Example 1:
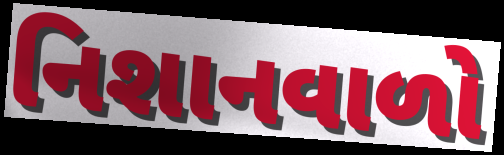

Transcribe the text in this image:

નિશાનવાળો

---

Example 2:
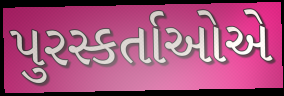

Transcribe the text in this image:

પુરસ્કર્તાઓએ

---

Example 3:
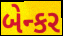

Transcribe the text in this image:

બેન્કર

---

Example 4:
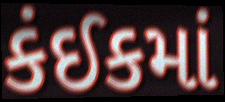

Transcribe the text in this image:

કંઈકમાં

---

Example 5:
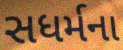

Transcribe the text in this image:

સધર્મના